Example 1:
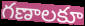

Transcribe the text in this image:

గణాలకూ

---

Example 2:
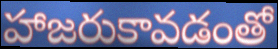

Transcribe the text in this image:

హాజరుకావడంతో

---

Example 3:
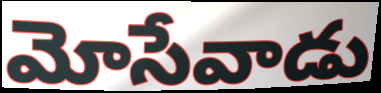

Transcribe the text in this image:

మోసేవాడు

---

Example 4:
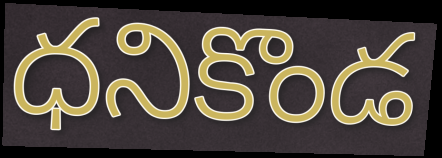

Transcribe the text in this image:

ధనికొండ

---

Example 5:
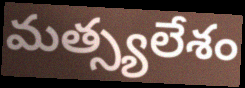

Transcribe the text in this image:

మత్స్యలేశం